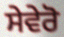
ਸੇਵੇਰੋ